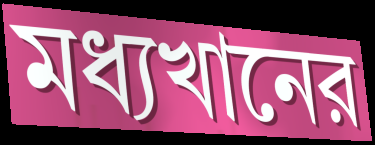
মধ্যখানের